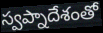
స్వప్నాదేశంతో